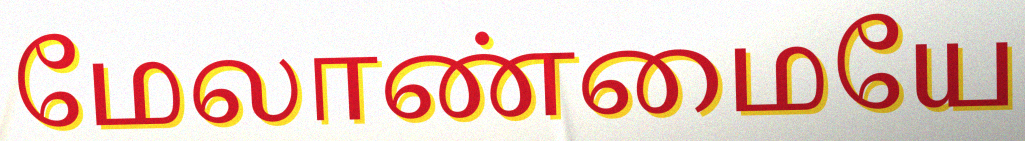
மேலாண்மையே